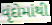
વૃંદોમાંથી